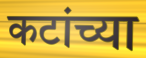
कटांच्या